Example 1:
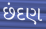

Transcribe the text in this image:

છંદણ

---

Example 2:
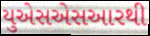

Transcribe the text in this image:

યુએસએસઆરથી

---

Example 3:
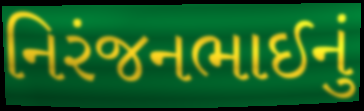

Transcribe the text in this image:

નિરંજનભાઈનું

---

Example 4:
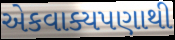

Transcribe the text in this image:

એકવાક્યપણાથી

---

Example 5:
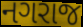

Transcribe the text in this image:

નગરાજ